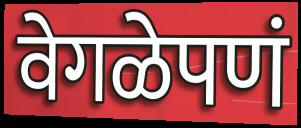
वेगळेपणं